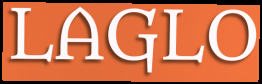
LAGLO